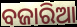
ବଜାରିଆ